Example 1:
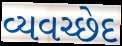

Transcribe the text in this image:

વ્યવચ્છેદ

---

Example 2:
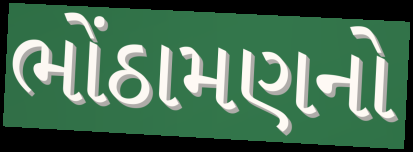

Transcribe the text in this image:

ભોંઠામણનો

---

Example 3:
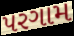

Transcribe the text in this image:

પરગામ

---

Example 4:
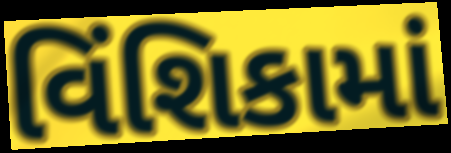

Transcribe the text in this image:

વિંશિકામાં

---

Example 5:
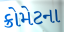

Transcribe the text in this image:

ક્રોમેટના